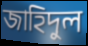
জাহিদুল